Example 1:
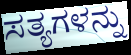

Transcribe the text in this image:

ಸತ್ಯಗಳನ್ನು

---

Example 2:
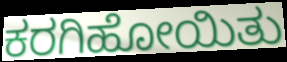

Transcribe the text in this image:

ಕರಗಿಹೋಯಿತು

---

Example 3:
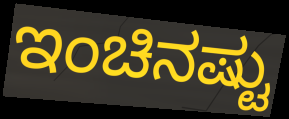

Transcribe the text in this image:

ಇಂಚಿನಷ್ಟು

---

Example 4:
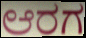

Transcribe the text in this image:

ಆರಗ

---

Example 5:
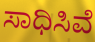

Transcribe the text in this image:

ಸಾಧಿಸಿವೆ